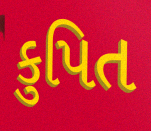
કુપિત